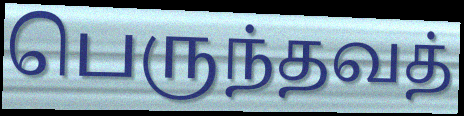
பெருந்தவத்